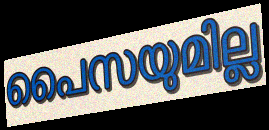
പൈസയുമില്ല